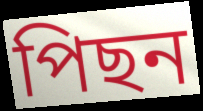
পিছন